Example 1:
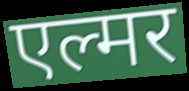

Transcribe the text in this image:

एल्मर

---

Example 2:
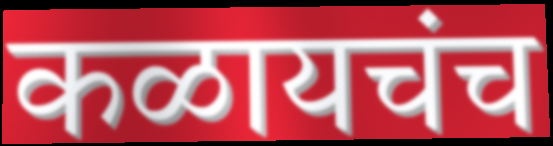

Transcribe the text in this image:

कळायचंच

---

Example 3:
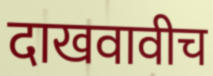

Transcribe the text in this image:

दाखवावीच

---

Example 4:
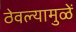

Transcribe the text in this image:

ठेवल्यामुळें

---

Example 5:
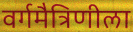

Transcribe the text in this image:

वर्गमैत्रिणीला